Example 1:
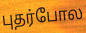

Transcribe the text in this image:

புதர்போல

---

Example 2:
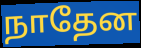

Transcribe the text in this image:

நாதேன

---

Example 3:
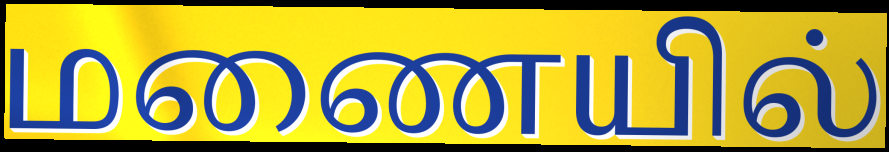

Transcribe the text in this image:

மணையில்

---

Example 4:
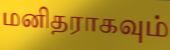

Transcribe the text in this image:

மனிதராகவும்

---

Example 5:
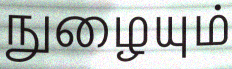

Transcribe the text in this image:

நுழையும்